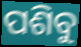
ପଶିବୁ